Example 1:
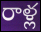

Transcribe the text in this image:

రాళ్ల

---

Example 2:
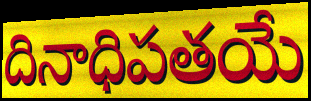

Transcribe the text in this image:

దినాధిపతయే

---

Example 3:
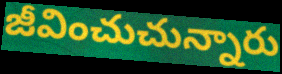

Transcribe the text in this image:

జీవించుచున్నారు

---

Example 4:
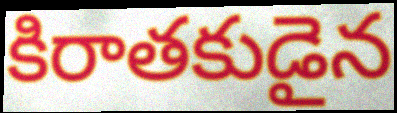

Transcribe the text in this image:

కిరాతకుడైన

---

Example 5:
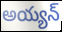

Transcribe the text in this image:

అయ్యన్